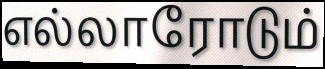
எல்லாரோடும்